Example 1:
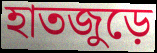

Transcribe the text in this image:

হাতজুড়ে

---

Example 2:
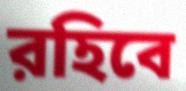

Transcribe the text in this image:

রহিবে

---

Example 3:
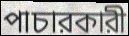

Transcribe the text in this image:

পাচারকারী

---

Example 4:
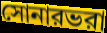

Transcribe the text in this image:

সোনারভরা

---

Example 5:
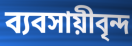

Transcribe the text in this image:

ব্যবসায়ীবৃন্দ